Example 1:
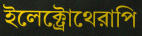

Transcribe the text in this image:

ইলেক্ট্রোথেরাপি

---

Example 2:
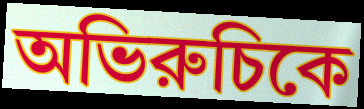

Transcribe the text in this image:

অভিরুচিকে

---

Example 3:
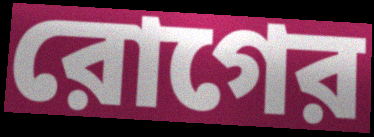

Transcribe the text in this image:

রোগের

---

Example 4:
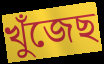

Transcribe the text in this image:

খুঁজেছ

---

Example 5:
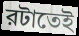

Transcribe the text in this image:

রটাতেই